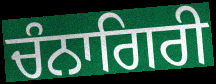
ਚੰਨਾਗਿਰੀ